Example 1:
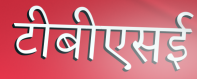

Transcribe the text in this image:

टीबीएसई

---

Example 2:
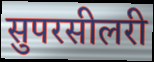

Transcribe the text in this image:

सुपरसीलरी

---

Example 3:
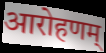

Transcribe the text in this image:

आरोहणम्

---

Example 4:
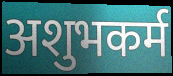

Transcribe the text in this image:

अशुभकर्म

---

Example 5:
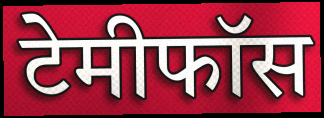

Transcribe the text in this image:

टेमीफॉस